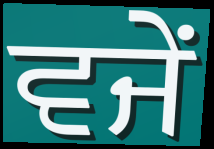
ਵਜੇਂ